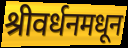
श्रीवर्धनमधून